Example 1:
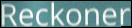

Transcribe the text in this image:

Reckoner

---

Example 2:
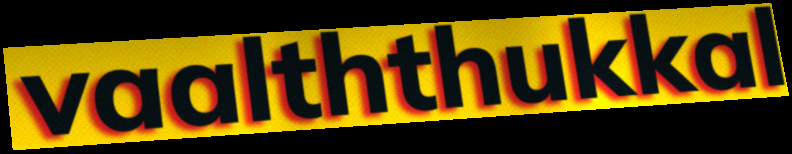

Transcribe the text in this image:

vaalththukkal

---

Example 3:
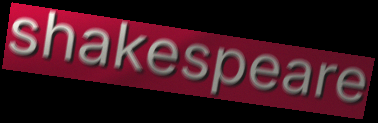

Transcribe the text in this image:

shakespeare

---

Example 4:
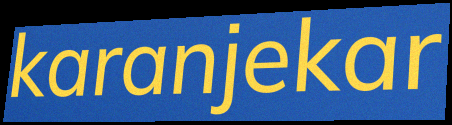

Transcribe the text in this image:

karanjekar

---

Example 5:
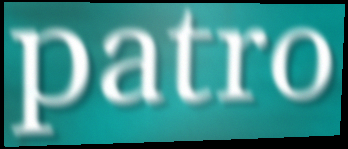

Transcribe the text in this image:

patro